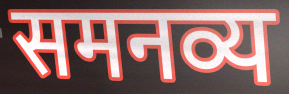
समनव्य